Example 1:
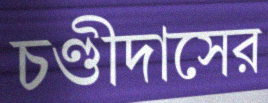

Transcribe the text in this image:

চণ্ডীদাসের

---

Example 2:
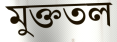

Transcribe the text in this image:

মুক্ততল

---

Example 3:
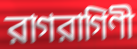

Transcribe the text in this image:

রাগরাগিণী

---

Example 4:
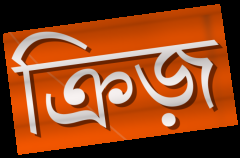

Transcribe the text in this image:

ক্রিজ়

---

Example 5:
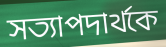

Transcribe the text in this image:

সত্যাপদার্থকে